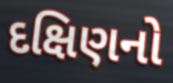
દક્ષિણનો